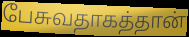
பேசுவதாகத்தான்